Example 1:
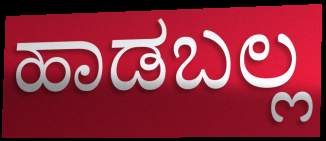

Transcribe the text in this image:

ಹಾಡಬಲ್ಲ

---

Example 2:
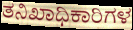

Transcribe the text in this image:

ತನಿಖಾಧಿಕಾರಿಗಳ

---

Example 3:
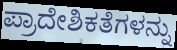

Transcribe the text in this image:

ಪ್ರಾದೇಶಿಕತೆಗಳನ್ನು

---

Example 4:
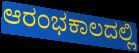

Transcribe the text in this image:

ಆರಂಭಕಾಲದಲ್ಲಿ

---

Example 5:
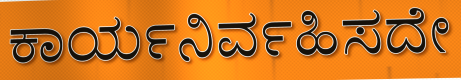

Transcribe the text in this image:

ಕಾರ್ಯನಿರ್ವಹಿಸದೇ